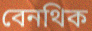
বেনথিক